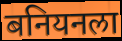
बनियनला